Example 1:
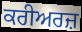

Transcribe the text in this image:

ਕਰੀਅਰਜ਼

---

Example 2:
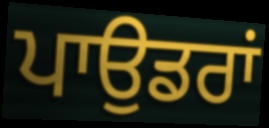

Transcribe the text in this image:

ਪਾਉਡਰਾਂ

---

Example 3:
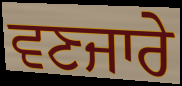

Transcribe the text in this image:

ਵਣਜਾਰੇ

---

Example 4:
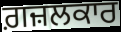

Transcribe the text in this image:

ਗ਼ਜ਼ਲਕਾਰ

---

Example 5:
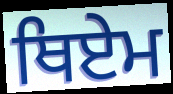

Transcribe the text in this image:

ਥਿਏਮ